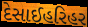
દેસાઈહરિહર